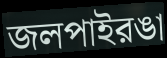
জলপাইরঙা